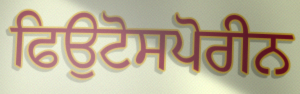
ਫਿਉਟੋਸਪੋਰੀਨ